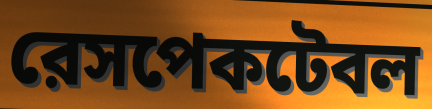
রেসপেকটেবল